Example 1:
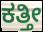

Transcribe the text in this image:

ಕತ್ತೀ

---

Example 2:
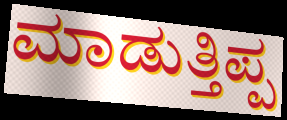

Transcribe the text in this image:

ಮಾಡುತ್ತಿಪ್ಪ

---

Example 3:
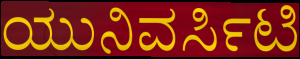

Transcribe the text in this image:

ಯುನಿವರ್ಸಿಟಿ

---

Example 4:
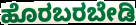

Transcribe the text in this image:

ಹೊರಬರಬೇಡಿ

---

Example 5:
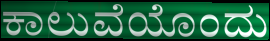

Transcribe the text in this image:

ಕಾಲುವೆಯೊಂದು